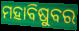
ମହାବିଷୁବର